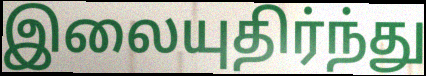
இலையுதிர்ந்து